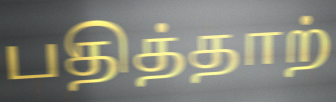
பதித்தாற்